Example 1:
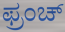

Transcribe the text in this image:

ಫ್ರಂಚ್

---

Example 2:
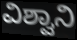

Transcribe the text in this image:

ವಿಶ್ವಾನಿ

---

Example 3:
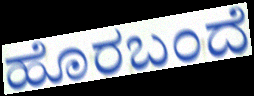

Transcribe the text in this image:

ಹೊರಬಂದೆ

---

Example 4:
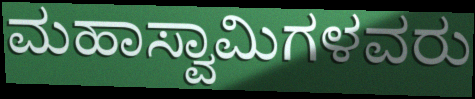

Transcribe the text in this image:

ಮಹಾಸ್ವಾಮಿಗಳವರು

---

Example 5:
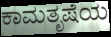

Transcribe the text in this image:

ಕಾಮತೃಷೆಯ